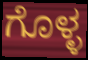
ಗೊಳ್ಳ